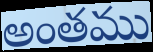
అంతము